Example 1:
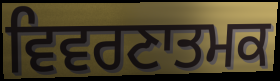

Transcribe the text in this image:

ਵਿਵਰਣਾਤਮਕ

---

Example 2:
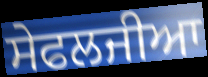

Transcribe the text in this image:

ਸੇਫਲਜੀਆ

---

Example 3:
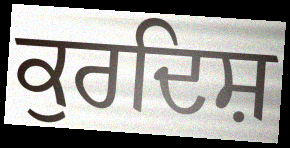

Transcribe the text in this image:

ਕੁਰਦਿਸ਼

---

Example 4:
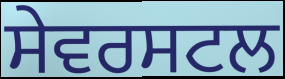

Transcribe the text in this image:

ਸੇਵਰਸਟਲ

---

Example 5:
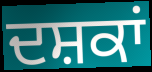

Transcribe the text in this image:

ਦਸ਼ਕਾਂ